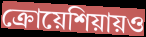
ক্রোয়েশিয়ায়ও